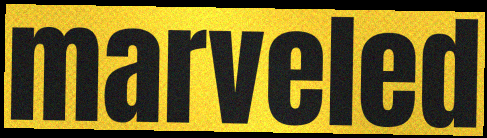
marveled